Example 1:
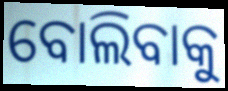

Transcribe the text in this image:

ବୋଲିବାକୁ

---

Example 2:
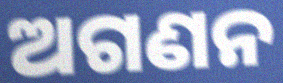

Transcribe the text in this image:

ଅଗଣନ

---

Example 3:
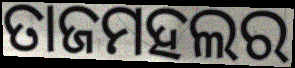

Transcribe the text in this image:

ତାଜମହଲର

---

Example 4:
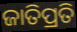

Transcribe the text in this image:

ଜାତିପ୍ରତି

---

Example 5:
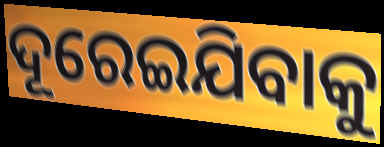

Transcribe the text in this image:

ଦୂରେଇଯିବାକୁ